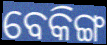
ବେକିଙ୍ଗ